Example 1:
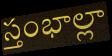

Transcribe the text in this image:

స్తంభాల్లా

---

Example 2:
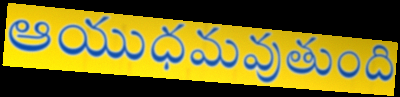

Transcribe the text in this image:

ఆయుధమవుతుంది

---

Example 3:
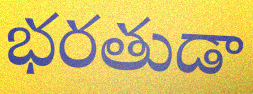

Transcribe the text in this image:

భరతుడా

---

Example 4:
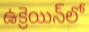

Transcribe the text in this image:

ఉక్రెయిన్‌లో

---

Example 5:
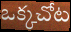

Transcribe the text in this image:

ఒక్కచోట